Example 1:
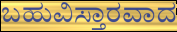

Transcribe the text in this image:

ಬಹುವಿಸ್ತಾರವಾದ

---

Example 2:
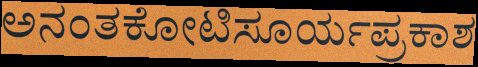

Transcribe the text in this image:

ಅನಂತಕೋಟಿಸೂರ್ಯಪ್ರಕಾಶ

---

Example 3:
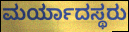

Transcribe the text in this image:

ಮರ್ಯಾದಸ್ಥರು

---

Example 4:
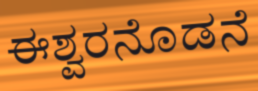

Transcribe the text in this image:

ಈಶ್ವರನೊಡನೆ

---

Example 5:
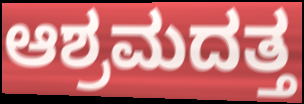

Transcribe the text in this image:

ಆಶ್ರಮದತ್ತ